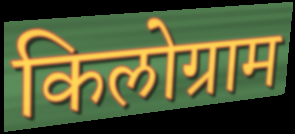
किलोग्राम